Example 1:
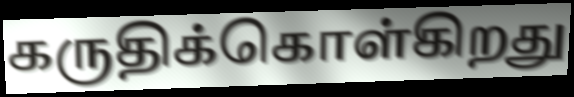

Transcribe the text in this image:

கருதிக்கொள்கிறது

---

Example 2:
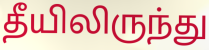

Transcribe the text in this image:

தீயிலிருந்து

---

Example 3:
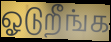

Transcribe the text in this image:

ஓடுறீங்க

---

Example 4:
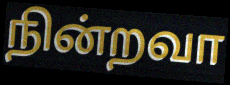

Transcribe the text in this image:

நின்றவா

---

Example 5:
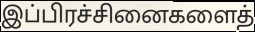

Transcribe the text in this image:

இப்பிரச்சினைகளைத்